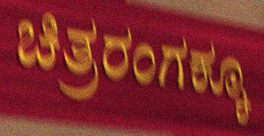
ಚಿತ್ರರಂಗಕ್ಕೂ